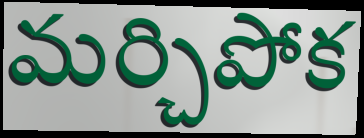
మర్చిపోక